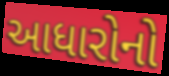
આધારોનો